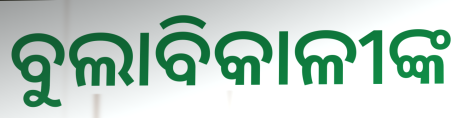
ବୁଲାବିକାଳୀଙ୍କ